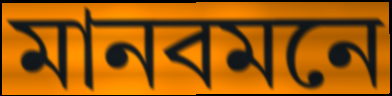
মানবমনে